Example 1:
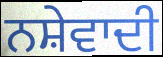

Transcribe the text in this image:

ਨਸ਼ੇਵਾਦੀ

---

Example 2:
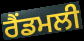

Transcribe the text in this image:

ਰੈਂਡਮਲੀ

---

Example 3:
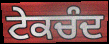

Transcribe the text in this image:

ਟੇਕਚੰਦ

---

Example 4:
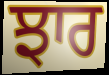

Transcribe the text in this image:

ਝਾਰ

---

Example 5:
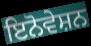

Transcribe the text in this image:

ਇਨੋਵੇਸ਼ਨ